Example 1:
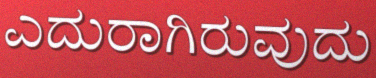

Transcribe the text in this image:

ಎದುರಾಗಿರುವುದು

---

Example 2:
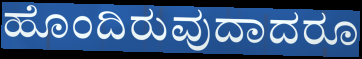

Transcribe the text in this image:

ಹೊಂದಿರುವುದಾದರೂ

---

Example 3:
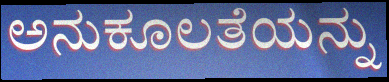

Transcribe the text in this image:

ಅನುಕೂಲತೆಯನ್ನು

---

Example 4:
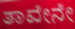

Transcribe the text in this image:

ತಾವೇನೇ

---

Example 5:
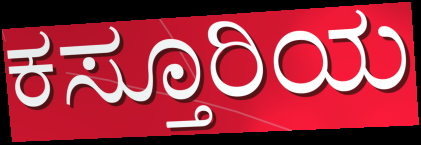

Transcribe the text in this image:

ಕಸ್ತೂರಿಯ